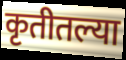
कृतीतल्या